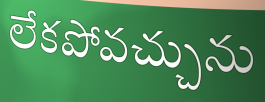
లేకపోవచ్చును